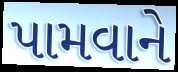
પામવાને